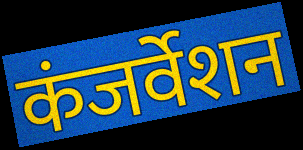
कंजर्वेशन